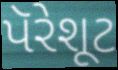
પૅરેશૂટ